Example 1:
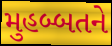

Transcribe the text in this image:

મુહબ્બતને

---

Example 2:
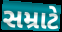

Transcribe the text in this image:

સમ્રાટે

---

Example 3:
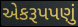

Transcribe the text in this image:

એકરૂપપણું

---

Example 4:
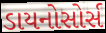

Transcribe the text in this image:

ડાયનોસોર્સ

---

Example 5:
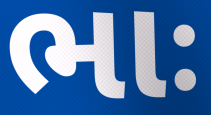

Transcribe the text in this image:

ભાઃ